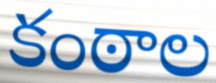
కంఠాల